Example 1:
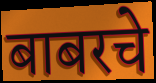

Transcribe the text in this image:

बाबरचे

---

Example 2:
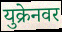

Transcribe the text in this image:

युक्रेनवर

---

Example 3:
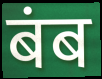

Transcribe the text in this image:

बंब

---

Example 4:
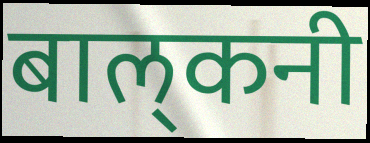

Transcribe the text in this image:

बाल्कनी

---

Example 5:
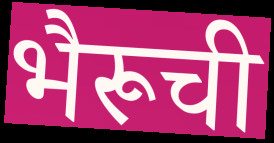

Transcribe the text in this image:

भैरूची